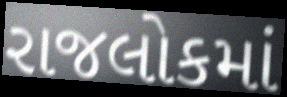
રાજલોકમાં